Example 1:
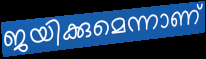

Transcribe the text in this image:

ജയിക്കുമെന്നാണ്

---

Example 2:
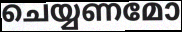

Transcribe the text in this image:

ചെയ്യണമോ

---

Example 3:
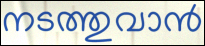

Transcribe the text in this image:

നടത്തുവാൻ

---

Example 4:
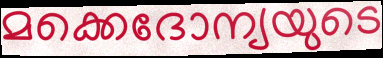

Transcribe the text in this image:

മക്കെദോന്യയുടെ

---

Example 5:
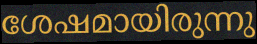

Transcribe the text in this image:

ശേഷമായിരുന്നു